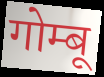
गोम्बू